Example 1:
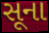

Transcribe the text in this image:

સૂના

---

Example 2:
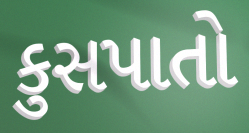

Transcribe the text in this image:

કુસપાતો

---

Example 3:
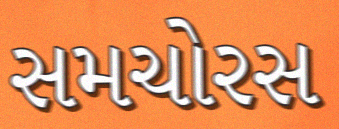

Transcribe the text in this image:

સમચોરસ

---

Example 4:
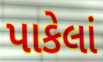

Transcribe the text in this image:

પાકેલાં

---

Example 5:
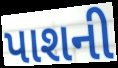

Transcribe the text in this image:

પાશની